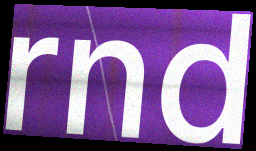
rnd